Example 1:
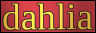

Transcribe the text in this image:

dahlia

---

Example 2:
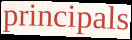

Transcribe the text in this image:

principals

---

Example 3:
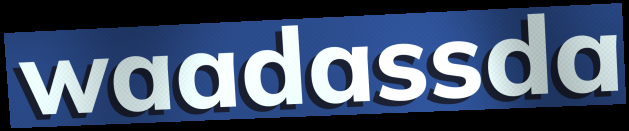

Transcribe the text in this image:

waadassda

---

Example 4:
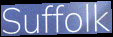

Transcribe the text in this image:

Suffolk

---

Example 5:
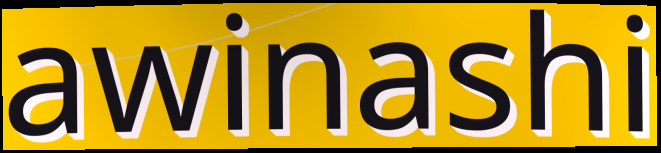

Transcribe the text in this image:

awinashi